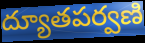
ద్యూతపర్వణి